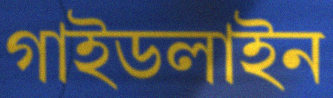
গাইডলাইন